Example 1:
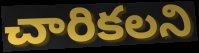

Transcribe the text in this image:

చారికలని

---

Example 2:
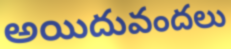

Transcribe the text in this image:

అయిదువందలు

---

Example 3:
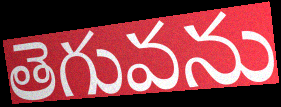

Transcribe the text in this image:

తెగువను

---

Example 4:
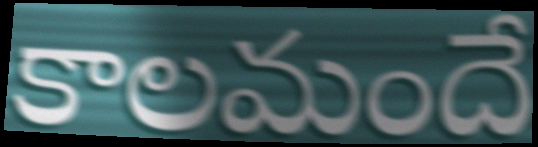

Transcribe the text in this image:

కాలమందే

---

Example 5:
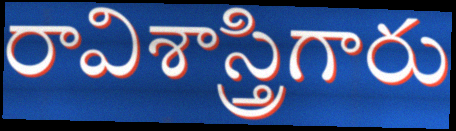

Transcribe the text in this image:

రావిశాస్త్రిగారు